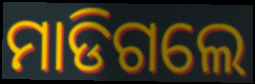
ମାଡିଗଲେ